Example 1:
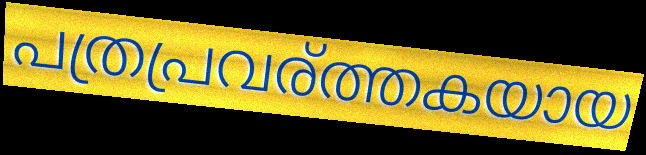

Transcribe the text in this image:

പത്രപ്രവര്ത്തകയായ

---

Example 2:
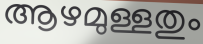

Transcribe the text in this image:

ആഴമുള്ളതും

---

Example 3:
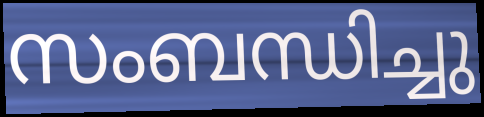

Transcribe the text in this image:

സംബന്ധിച്ചു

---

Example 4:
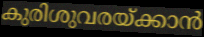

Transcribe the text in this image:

കുരിശുവരയ്ക്കാൻ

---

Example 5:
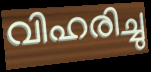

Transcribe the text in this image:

വിഹരിച്ചു